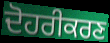
ਦੋਹਰੀਕਰਣ